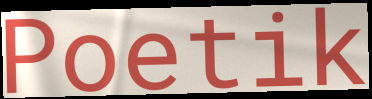
Poetik